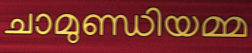
ചാമുണ്ഡിയമ്മ